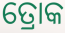
ତ୍ରୋକ